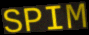
SPIM